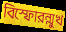
বিস্ফোরন্মুখ